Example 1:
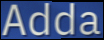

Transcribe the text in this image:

Adda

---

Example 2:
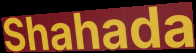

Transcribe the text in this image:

Shahada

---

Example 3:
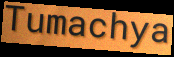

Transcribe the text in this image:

Tumachya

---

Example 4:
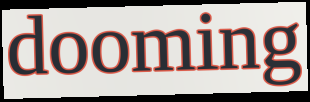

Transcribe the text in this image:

dooming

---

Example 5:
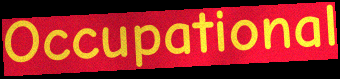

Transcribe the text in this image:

Occupational